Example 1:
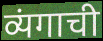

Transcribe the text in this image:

व्यंगाची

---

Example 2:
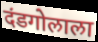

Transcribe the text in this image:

दंडगोलाला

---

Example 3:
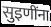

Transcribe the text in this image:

सुइणींना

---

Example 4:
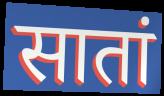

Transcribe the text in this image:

सातां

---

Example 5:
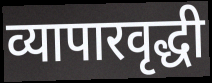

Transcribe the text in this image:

व्यापारवृद्धी